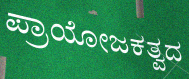
ಪ್ರಾಯೋಜಕತ್ವದ